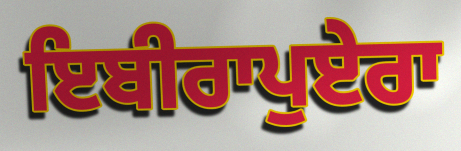
ਇਬੀਰਾਪੁਏਰਾ